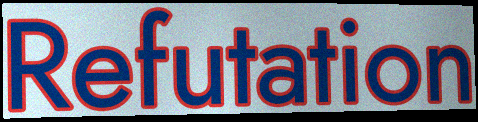
Refutation